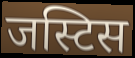
जस्टिस